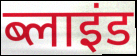
ब्लाइंड